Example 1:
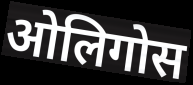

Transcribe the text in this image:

ओलिगोस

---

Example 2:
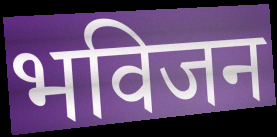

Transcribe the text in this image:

भविजन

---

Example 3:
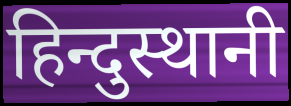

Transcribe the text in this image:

हिन्दुस्थानी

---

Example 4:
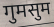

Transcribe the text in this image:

गुमसुम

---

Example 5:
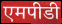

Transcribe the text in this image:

एमपीडी